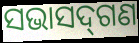
ସଭାସଦ୍‍ଗଣ